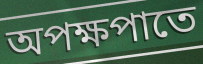
অপক্ষপাতে